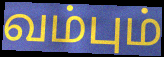
வம்பும்